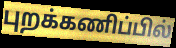
புறக்கணிப்பில்